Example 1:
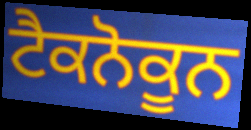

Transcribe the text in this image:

ਟੈਕਨੋਕੂਨ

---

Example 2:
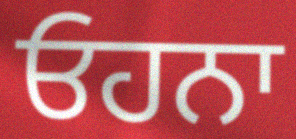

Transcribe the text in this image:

ਓਹਨਾ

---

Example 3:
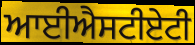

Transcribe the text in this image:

ਆਈਐਸਟੀਏਟੀ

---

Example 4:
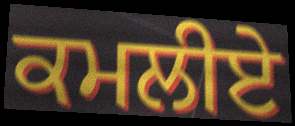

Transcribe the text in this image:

ਕਮਲੀਏ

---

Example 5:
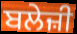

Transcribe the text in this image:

ਬਲੇਜ਼ੀ